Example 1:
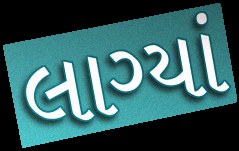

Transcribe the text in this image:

લાગ્યાં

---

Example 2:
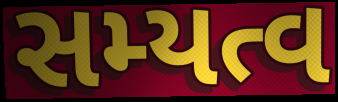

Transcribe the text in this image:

સમ્યત્વ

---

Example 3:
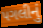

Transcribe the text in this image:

પગલીનું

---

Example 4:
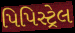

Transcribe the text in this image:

પિપિસ્ટ્રેલ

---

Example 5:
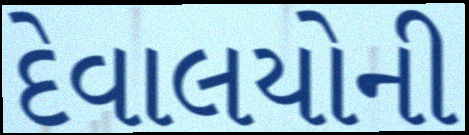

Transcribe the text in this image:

દેવાલયોની